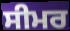
ਸੀਮਰ